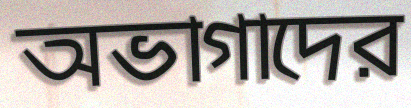
অভাগাদের